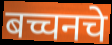
बच्चनचे